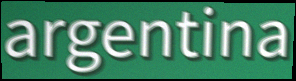
argentina